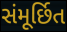
સંમૂર્છિત